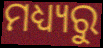
ମଧ୍ୟ୍ୟରୁ